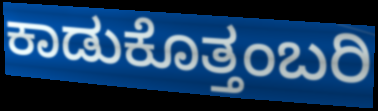
ಕಾಡುಕೊತ್ತಂಬರಿ